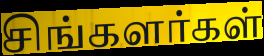
சிங்களர்கள்